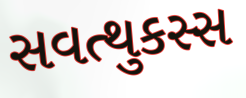
સવત્થુકસ્સ